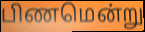
பிணமென்று